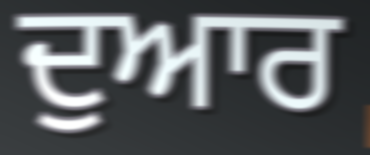
ਦੁਆਰ